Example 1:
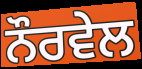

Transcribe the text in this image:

ਨੌਰਵੇਲ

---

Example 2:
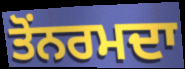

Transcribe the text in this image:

ਤੋਂਨਰਮਦਾ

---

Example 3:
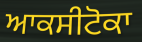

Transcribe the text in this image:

ਆਕਸੀਟੋਕਾ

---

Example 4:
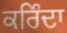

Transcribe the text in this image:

ਕਰਿੰਦਾ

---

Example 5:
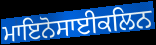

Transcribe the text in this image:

ਮਾਇਨੋਸਾਈਕਲਿਨ